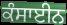
ਕੰਸਾਈਨ